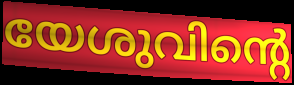
യേശുവിന്റെ